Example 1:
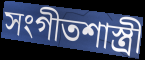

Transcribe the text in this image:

সংগীতশাস্ত্রী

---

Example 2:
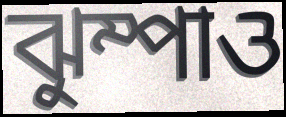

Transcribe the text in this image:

ঝুম্পাও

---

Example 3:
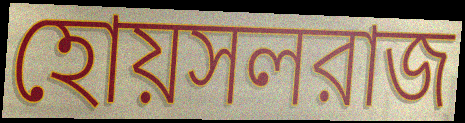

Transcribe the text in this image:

হোয়সলরাজ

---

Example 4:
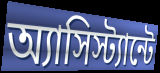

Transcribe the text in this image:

অ্যাসিস্ট্যান্টে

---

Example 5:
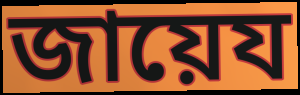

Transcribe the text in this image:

জায়েয